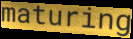
maturing